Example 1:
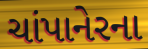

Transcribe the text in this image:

ચાંપાનેરના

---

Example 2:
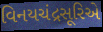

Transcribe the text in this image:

વિનયચંદ્રસૂરિએ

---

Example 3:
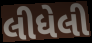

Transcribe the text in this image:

લીધેલી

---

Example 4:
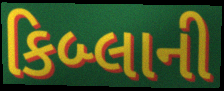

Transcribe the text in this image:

કિબ્લાની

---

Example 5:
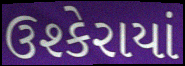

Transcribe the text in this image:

ઉશ્કેરાયાં